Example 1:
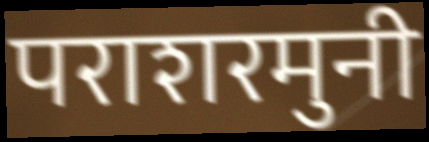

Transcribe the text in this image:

पराशरमुनी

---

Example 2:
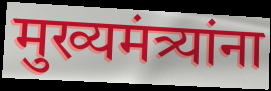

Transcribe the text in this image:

मुख्यमंत्र्यांना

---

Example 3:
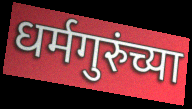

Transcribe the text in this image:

धर्मगुरुंच्या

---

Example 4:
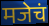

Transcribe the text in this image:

मजेचं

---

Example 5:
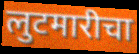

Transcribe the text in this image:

लुटमारीचा